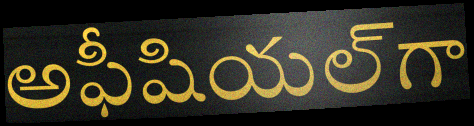
అఫీషియల్‌గా